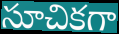
సూచికగా